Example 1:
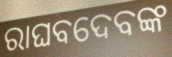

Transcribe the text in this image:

ରାଘବଦେବଙ୍କ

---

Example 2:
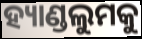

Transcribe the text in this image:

ହ୍ୟାଣ୍ଡଲୁମକୁ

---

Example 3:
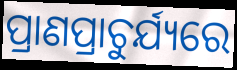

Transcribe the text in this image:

ପ୍ରାଣପ୍ରାଚୁର୍ଯ୍ୟରେ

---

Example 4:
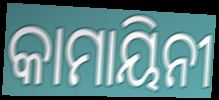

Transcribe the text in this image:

କାମାୟିନୀ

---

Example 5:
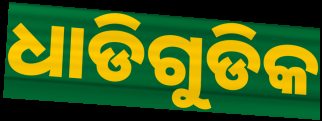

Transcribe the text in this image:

ଧାଡିଗୁଡିକ